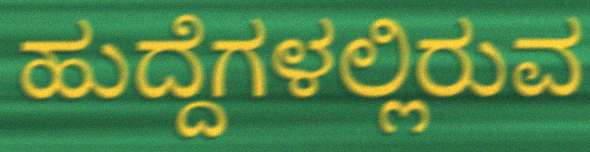
ಹುದ್ದೆಗಳಲ್ಲಿರುವ